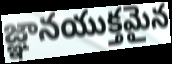
జ్ఞానయుక్తమైన